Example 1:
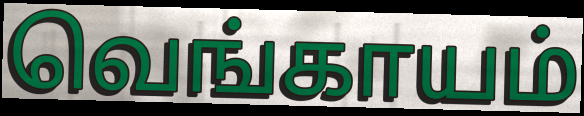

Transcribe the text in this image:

வெங்காயம்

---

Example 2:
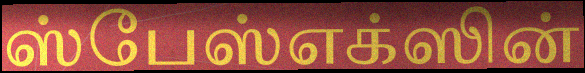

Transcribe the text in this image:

ஸ்பேஸ்எக்ஸின்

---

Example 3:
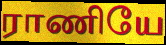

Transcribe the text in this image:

ராணியே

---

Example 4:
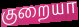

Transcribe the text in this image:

குறையா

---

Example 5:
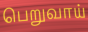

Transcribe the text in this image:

பெறுவாய்